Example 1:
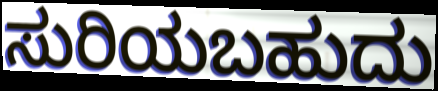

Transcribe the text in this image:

ಸುರಿಯಬಹುದು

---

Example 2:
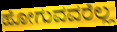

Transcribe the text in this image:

ಹೋಗುವವರೆಲ್ಲ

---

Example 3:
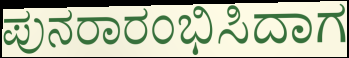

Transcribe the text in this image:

ಪುನರಾರಂಭಿಸಿದಾಗ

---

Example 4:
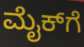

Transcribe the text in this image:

ಮೈಕ್‌ಗೆ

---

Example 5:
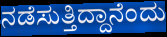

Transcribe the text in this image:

ನಡೆಸುತ್ತಿದ್ದಾನೆಂದು